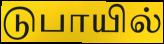
டுபாயில்